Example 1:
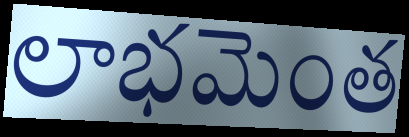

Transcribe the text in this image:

లాభమెంత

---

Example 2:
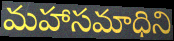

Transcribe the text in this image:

మహాసమాధిని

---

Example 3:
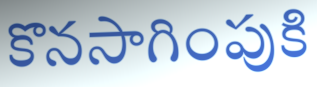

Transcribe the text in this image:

కొనసాగింపుకి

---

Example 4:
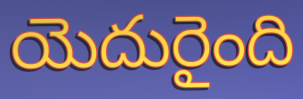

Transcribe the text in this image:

యెదురైంది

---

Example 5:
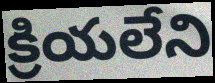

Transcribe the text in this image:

క్రియలేని